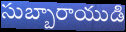
సుబ్బారాయుడి